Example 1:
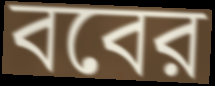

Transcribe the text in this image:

ববের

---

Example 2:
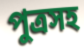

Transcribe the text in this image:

পুত্রসহ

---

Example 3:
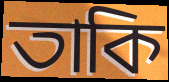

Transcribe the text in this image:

তাকি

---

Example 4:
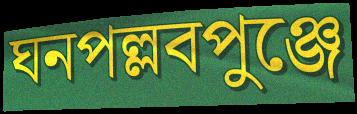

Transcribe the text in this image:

ঘনপল্লবপুঞ্জে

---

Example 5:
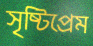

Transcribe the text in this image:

সৃষ্টিপ্রেম